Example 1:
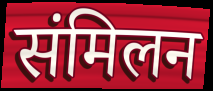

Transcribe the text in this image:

संमिलन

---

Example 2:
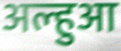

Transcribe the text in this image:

अल्हुआ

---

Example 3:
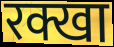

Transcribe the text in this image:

रक्खा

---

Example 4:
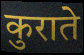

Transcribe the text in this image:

कुराते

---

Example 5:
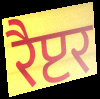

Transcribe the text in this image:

रैप्टर